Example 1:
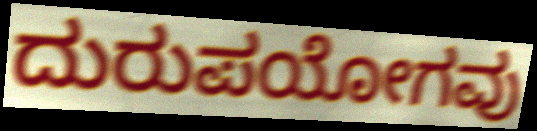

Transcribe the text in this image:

ದುರುಪಯೋಗವು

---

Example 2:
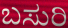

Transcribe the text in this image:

ಬಸುರಿ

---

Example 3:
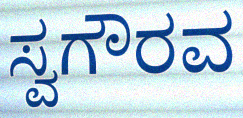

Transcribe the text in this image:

ಸ್ವಗೌರವ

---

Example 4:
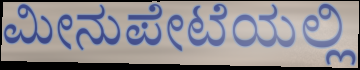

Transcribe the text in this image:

ಮೀನುಪೇಟೆಯಲ್ಲಿ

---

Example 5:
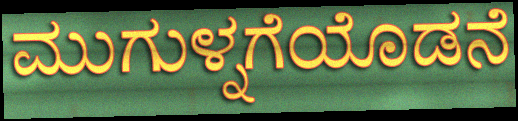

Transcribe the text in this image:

ಮುಗುಳ್ನಗೆಯೊಡನೆ